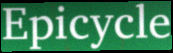
Epicycle